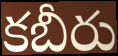
కబీరు